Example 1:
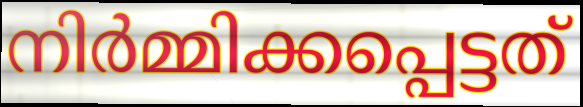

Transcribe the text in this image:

നിർമ്മിക്കപ്പെട്ടത്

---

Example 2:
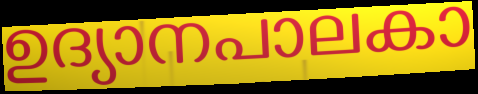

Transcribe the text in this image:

ഉദ്യാനപാലകാ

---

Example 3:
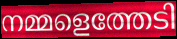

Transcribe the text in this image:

നമ്മളെത്തേടി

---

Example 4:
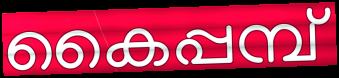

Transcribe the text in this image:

കൈപ്പമ്പ്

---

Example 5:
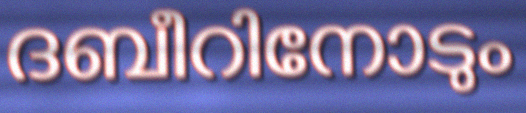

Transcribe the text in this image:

ദബീറിനോടും